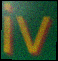
iv